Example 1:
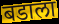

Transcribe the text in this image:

बडाला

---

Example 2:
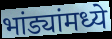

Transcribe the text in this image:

भांड्यांमध्ये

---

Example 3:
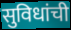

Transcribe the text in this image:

सुविधांची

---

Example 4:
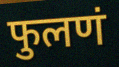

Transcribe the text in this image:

फुलणं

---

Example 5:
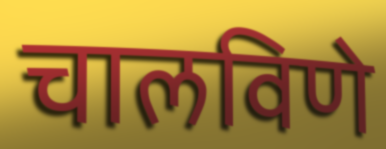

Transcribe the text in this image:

चालविणे